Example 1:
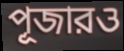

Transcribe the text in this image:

পূজারও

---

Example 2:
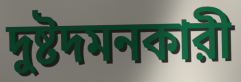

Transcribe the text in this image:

দুষ্টদমনকারী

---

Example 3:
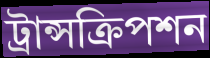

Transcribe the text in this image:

ট্রান্সক্রিপশন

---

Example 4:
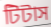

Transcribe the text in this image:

টিটাস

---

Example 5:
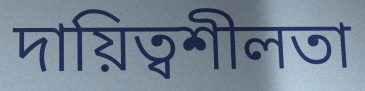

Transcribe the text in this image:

দায়িত্বশীলতা